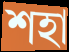
শহা